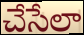
చేసేలా